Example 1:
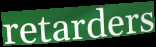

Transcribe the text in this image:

retarders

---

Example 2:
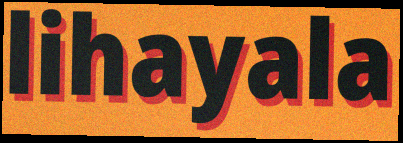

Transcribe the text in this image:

lihayala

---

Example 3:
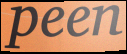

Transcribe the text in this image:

peen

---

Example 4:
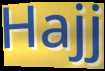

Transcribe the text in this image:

Hajj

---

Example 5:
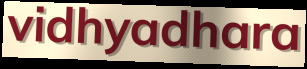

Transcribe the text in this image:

vidhyadhara